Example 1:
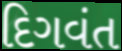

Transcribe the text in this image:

દિગવંત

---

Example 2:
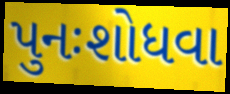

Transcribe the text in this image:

પુનઃશોધવા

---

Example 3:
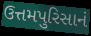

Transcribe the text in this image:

ઉત્તમપુરિસાનં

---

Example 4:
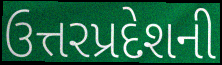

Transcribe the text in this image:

ઉત્તરપ્રદેશની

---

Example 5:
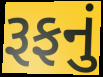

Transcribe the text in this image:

રૂફનું